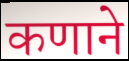
कणाने